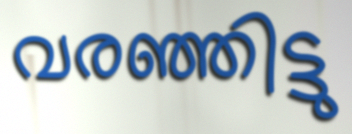
വരഞ്ഞിട്ടു